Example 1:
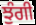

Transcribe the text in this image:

ਝੁੰਗੀ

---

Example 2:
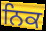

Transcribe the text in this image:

ਨਿਕ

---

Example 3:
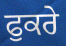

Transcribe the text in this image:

ਫੁਕਰੇ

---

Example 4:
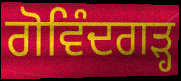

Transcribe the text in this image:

ਗੋਵਿੰਦਗੜ੍ਹ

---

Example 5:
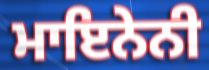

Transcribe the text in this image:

ਮਾਇਨੇਨੀ